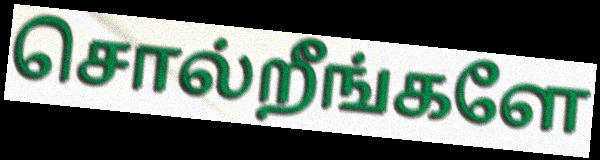
சொல்றீங்களே